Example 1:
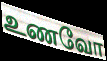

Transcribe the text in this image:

உணவோ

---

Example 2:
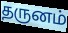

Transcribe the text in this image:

தருனம்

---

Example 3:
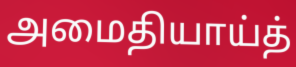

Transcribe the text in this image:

அமைதியாய்த்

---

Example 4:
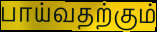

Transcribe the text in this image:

பாய்வதற்கும்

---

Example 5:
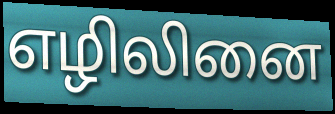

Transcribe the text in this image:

எழிலினை